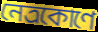
নেত্রকোণে